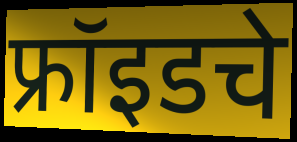
फ्रॉइडचे